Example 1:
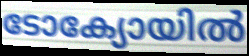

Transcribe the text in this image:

ടോക്യോയിൽ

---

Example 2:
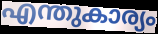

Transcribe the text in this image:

എന്തുകാര്യം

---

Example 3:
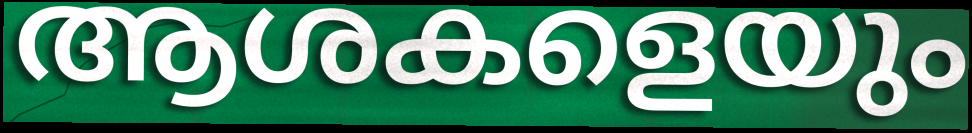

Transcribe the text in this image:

ആശകളെയും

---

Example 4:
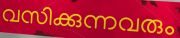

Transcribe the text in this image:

വസിക്കുന്നവരും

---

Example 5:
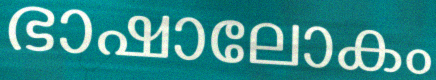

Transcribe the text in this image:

ഭാഷാലോകം